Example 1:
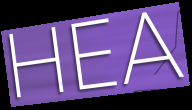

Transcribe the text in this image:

HEA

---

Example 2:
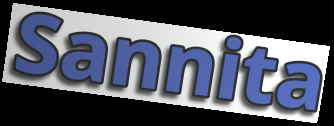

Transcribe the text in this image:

Sannita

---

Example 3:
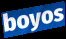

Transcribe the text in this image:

boyos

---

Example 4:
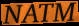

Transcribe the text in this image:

NATM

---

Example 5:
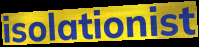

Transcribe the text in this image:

isolationist